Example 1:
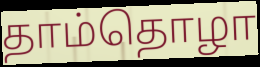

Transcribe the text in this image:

தாம்தொழா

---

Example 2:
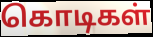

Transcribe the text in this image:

கொடிகள்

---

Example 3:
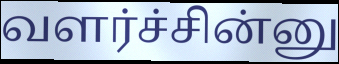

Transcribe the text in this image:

வளர்ச்சின்னு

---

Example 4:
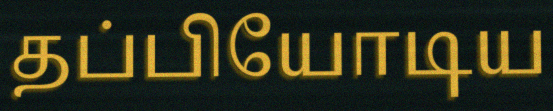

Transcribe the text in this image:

தப்பியோடிய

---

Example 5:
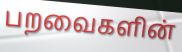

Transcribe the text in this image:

பறவைகளின்